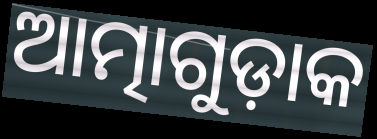
ଆତ୍ମାଗୁଡ଼ାକ